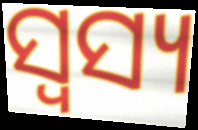
ସ୍ଵସ୍ଯ